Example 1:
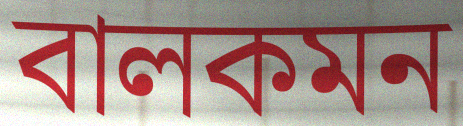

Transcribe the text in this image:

বালকমন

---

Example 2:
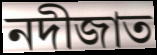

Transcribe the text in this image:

নদীজাত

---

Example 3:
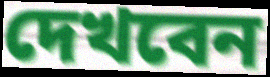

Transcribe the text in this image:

দেখবেন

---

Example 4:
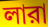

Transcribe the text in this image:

লারা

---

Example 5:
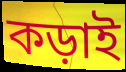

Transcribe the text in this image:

কড়াই